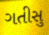
ગતીસુ